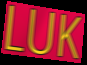
LUK